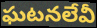
ఘటనలేవీ